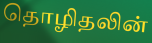
தொழிதலின்